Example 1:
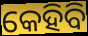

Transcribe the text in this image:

କେହିବି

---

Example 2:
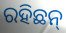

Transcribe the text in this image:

ରହିଛନ୍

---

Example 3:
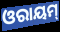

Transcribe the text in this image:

ଓରାୟମ୍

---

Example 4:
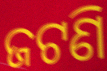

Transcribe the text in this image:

ଜଟଣି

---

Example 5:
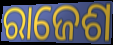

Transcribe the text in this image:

ରାଜେଶ